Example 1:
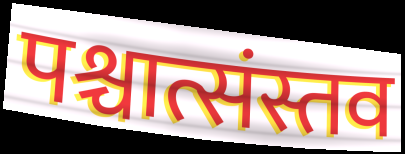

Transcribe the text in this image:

पश्चात्संस्तव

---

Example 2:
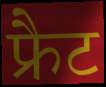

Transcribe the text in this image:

फ्रैट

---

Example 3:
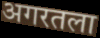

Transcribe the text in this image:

अगरतला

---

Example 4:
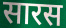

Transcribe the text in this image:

सारस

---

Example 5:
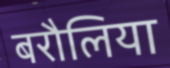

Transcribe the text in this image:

बरौलिया